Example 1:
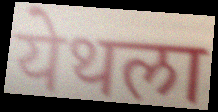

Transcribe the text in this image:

येथला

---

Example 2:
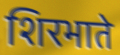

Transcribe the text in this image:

शिरभाते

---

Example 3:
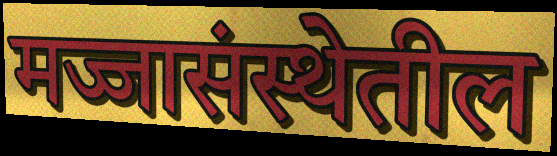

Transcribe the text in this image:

मज्जासंस्थेतील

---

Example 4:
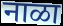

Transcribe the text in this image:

नाळा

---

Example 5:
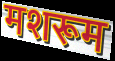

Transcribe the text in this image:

मशरूम